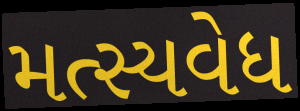
મત્સ્યવેધ